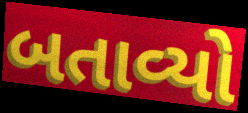
બતાવ્યો